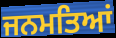
ਜਨਮਤਿਆਂ